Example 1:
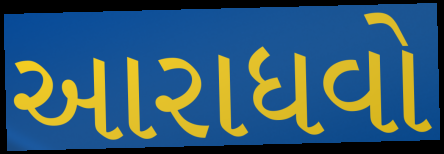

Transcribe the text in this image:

આરાધવો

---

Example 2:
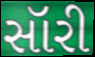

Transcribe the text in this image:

સૉરી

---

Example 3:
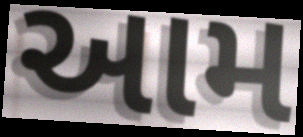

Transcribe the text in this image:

આમ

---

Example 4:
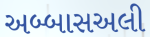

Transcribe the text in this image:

અબ્બાસઅલી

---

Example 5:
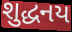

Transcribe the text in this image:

શુદ્ધનય